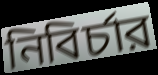
নিবির্চার